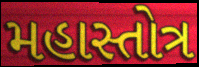
મહાસ્તોત્ર